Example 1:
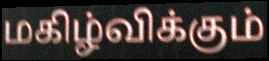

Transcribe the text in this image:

மகிழ்விக்கும்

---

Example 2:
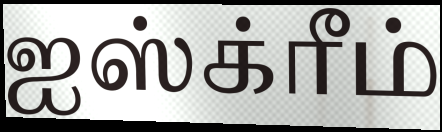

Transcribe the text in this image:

ஐஸ்க்ரீம்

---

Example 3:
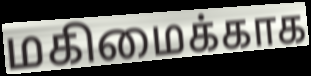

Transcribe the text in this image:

மகிமைக்காக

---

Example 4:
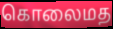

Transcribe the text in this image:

கொலைமத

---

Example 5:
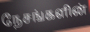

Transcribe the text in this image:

நேசங்களின்